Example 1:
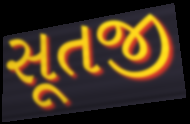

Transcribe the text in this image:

સૂતજી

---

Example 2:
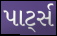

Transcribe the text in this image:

પાર્ટ્સ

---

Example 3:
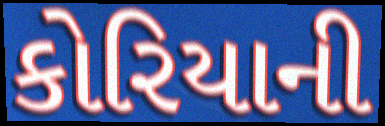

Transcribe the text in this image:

કોરિયાની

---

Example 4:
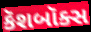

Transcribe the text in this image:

કૅશબૉક્સ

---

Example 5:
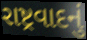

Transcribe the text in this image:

રાષ્ટ્રવાદનું